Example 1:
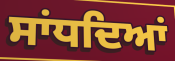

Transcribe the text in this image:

ਸਾਂਧਦਿਆਂ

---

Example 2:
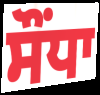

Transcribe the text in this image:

ਸੌਂਧਾ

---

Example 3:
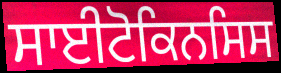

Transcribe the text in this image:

ਸਾਈਟੋਕਿਨਸਿਸ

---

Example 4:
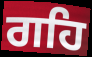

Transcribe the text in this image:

ਗਹਿ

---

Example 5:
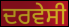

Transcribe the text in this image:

ਦਰਵੇਸੀ